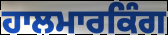
ਹਾਲਮਾਰਕਿੰਗ